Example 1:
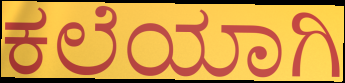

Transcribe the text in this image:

ಕಲೆಯಾಗಿ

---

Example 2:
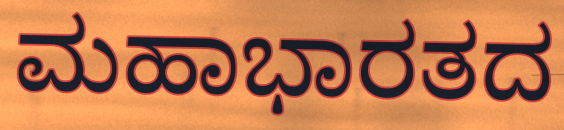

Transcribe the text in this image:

ಮಹಾಭಾರತದ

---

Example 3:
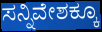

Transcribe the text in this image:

ಸನ್ನಿವೇಶಕ್ಕೂ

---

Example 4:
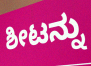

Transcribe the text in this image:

ಶೀಟನ್ನು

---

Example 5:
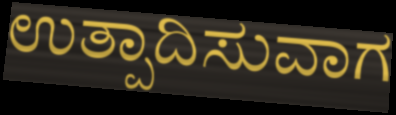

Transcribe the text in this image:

ಉತ್ಪಾದಿಸುವಾಗ